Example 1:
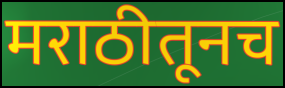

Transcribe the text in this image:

मराठीतूनच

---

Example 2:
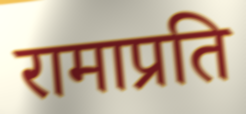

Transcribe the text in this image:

रामाप्रति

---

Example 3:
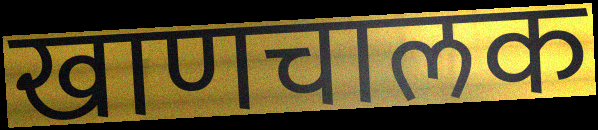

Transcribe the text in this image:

खाणचालक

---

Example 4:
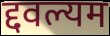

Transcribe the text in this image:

द्दवल्यम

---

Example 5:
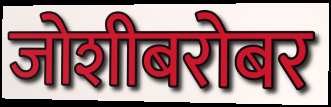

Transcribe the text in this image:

जोशीबरोबर